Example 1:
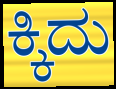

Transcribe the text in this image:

ಕ್ಕಿದು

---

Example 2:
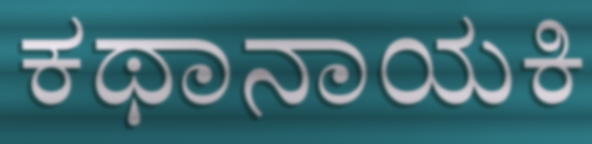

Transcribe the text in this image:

ಕಥಾನಾಯಕಿ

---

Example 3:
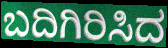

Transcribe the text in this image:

ಬದಿಗಿರಿಸಿದ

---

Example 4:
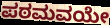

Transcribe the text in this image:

ಪಠಮವಯೇ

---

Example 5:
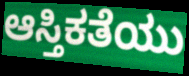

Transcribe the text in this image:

ಆಸ್ತಿಕತೆಯು